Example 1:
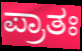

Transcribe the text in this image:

ಪ್ರಾತಃ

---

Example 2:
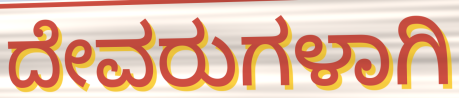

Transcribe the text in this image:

ದೇವರುಗಳಾಗಿ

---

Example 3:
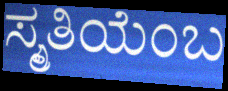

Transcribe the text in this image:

ಸ್ಮೃತಿಯೆಂಬ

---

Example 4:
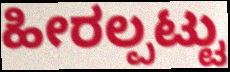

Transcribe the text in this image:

ಹೀರಲ್ಪಟ್ಟು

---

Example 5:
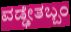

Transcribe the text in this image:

ವಡ್ಢೇತಬ್ಬಂ